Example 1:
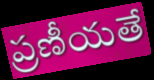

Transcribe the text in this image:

ప్రణీయతే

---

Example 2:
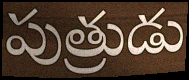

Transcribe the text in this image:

పుత్రుడు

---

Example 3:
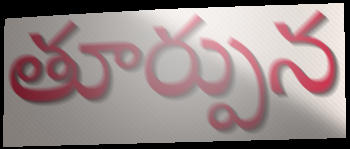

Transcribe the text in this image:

తూర్పున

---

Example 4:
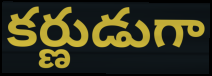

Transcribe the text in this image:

కర్ణుడుగా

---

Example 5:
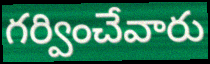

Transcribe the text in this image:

గర్వించేవారు